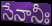
సేనానీః